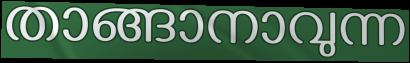
താങ്ങാനാവുന്ന